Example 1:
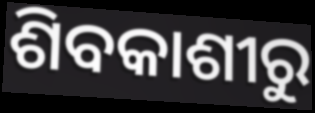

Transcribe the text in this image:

ଶିବକାଶୀରୁ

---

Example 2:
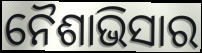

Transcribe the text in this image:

ନୈଶାଭିସାର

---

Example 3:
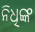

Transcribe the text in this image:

ନିଧିଙ୍କ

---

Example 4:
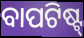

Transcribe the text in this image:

ବାପଟିଷ୍ଟ୍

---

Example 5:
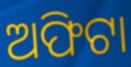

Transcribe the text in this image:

ଅଫିଟା